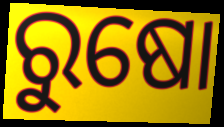
ରୁଷୋ